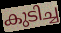
കുടിച്ച